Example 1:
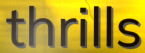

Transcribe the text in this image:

thrills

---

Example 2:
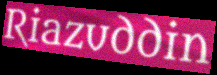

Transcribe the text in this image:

Riazuddin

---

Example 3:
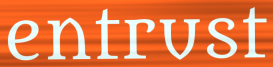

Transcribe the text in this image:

entrust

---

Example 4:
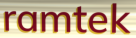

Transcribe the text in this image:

ramtek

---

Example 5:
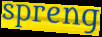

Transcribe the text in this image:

spreng